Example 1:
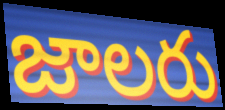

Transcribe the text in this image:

జాలరు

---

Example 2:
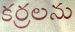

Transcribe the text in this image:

కర్రలను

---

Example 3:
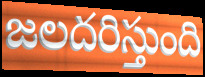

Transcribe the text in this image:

జలదరిస్తుంది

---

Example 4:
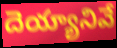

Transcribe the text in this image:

దెయ్యానివే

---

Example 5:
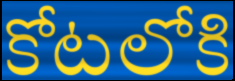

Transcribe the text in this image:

కోటలోకి